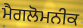
ਮੈਗਲੋਮਨੀਕ